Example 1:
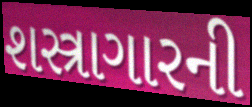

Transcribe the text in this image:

શસ્ત્રાગારની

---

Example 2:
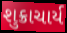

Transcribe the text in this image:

શુક્રાચાર્ય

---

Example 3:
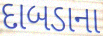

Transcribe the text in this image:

દાબડાના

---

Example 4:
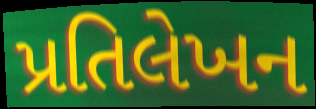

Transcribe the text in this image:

પ્રતિલેખન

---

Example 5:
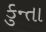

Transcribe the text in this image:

કુન્તા